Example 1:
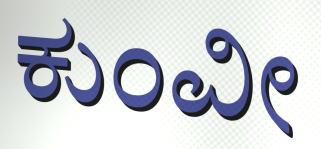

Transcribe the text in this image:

ಕುಂವೀ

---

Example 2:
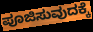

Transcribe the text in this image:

ಪೂಜಿಸುವುದಕ್ಕೆ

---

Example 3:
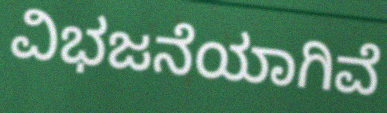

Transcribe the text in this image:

ವಿಭಜನೆಯಾಗಿವೆ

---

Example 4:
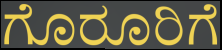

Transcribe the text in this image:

ಗೊರೂರಿಗೆ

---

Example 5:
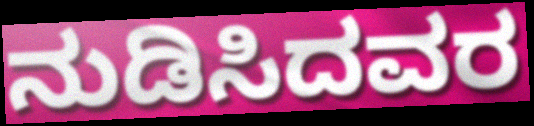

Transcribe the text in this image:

ನುಡಿಸಿದವರ